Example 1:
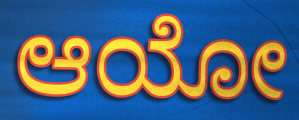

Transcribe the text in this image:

ಆಯೋ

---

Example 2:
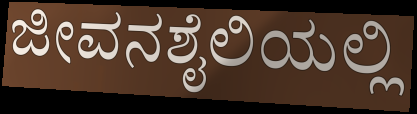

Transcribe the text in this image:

ಜೀವನಶೈಲಿಯಲ್ಲಿ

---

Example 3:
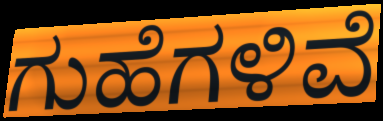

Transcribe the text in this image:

ಗುಹೆಗಳಿವೆ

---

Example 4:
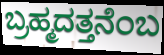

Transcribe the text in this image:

ಬ್ರಹ್ಮದತ್ತನೆಂಬ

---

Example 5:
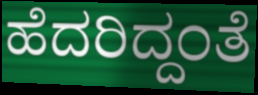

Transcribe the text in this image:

ಹೆದರಿದ್ದಂತೆ